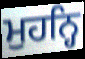
ਮੁਹਨ੍ਹ੍ਹਿ